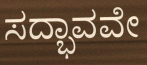
ಸದ್ಭಾವವೇ